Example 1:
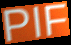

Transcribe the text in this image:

PIF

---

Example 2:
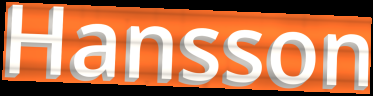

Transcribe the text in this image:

Hansson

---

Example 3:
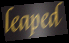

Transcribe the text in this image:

leaped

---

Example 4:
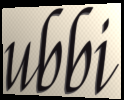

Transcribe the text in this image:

ubbi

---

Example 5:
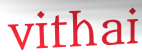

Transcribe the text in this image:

vithai